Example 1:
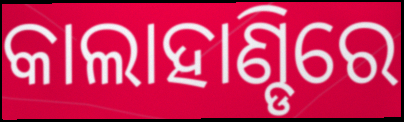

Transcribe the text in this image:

କାଲାହାଣ୍ଡିରେ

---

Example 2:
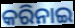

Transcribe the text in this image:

କରିନାଇ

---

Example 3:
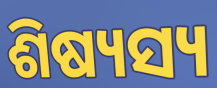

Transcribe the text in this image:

ଶିଷ୍ୟସ୍ୟ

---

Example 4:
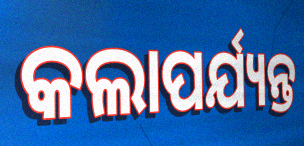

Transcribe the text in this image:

କଲାପର୍ଯ୍ୟନ୍ତ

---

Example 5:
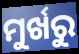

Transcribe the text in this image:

ମୁର୍ଖରୁ